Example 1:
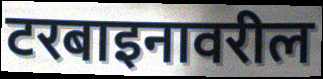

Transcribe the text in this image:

टरबाइनावरील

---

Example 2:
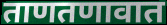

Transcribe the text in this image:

ताणतणावात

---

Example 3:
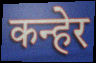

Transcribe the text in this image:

कन्हेर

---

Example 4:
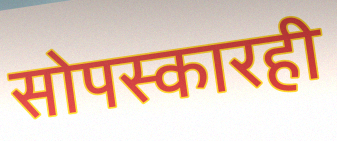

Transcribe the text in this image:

सोपस्कारही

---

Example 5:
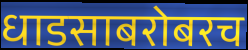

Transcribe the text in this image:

धाडसाबरोबरच